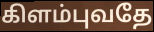
கிளம்புவதே